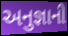
અનુજ્ઞાની